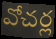
వోచర్ల